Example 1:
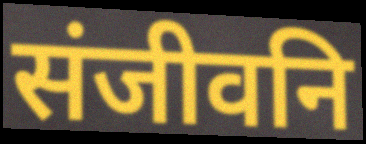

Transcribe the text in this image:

संजीवनि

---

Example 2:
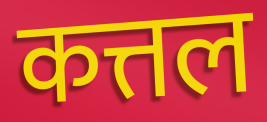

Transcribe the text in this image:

कत्तल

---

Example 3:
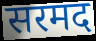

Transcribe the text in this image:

सरमद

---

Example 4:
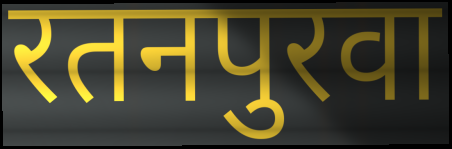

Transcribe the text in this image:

रतनपुरवा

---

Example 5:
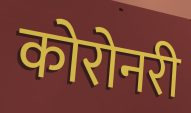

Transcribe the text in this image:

कोरोनरी